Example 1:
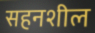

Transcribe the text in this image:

सहनशील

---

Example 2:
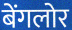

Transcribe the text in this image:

बेंगलोर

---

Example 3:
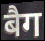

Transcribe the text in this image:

बैग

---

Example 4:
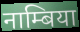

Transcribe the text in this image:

नाम्बिया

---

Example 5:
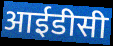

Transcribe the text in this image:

आईडीसी